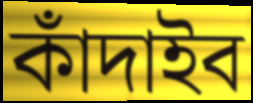
কাঁদাইব